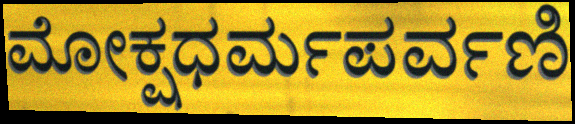
ಮೋಕ್ಷಧರ್ಮಪರ್ವಣಿ